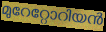
മുറേറ്റോറിയൻ